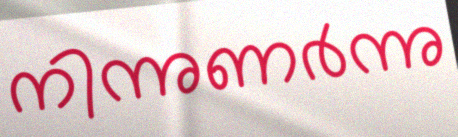
നിന്നുണർന്നു